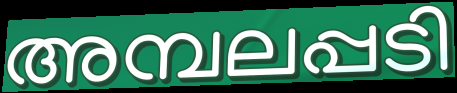
അമ്പലപ്പടി